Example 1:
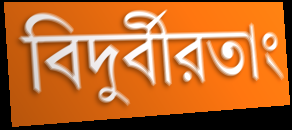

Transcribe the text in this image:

বিদুর্বীরতাং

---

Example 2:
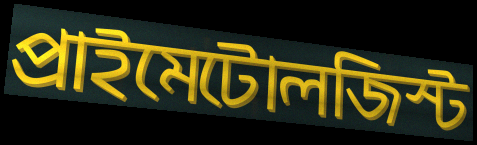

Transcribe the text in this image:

প্রাইমেটোলজিস্ট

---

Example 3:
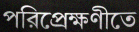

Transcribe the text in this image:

পরিপ্রেক্ষণীতে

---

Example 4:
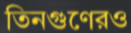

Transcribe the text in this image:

তিনগুণেরও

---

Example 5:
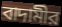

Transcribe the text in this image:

বাদামীর